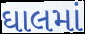
ઘાલમાં